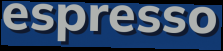
espresso